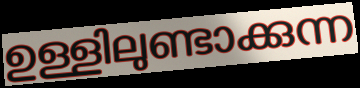
ഉള്ളിലുണ്ടാക്കുന്ന